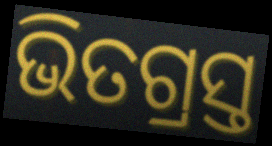
ଭିତଗ୍ରସ୍ତ